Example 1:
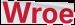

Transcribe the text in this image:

Wroe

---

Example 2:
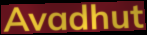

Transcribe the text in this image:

Avadhut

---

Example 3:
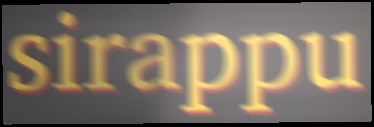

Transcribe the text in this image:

sirappu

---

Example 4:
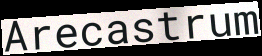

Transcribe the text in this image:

Arecastrum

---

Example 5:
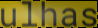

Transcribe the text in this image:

ulhas